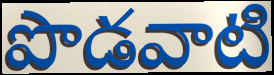
పొడవాటి